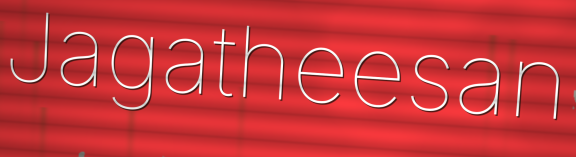
Jagatheesan